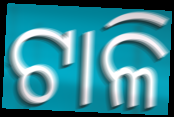
ଟାଳି